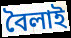
বৈলাই